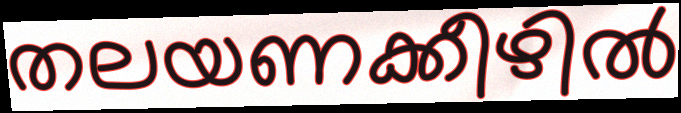
തലയണക്കീഴിൽ